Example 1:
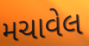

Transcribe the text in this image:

મચાવેલ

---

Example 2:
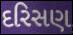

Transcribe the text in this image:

દરિસણ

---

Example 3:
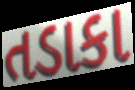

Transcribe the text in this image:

તડાકા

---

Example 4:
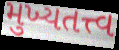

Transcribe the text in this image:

મુખ્યતત્ત્વ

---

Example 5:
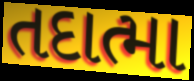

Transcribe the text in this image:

તદાત્મા